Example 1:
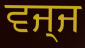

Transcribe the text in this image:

ਵਜ੍ਜ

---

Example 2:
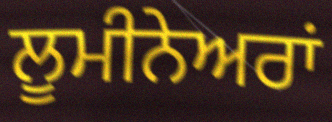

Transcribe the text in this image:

ਲੂਮੀਨੇਅਰਾਂ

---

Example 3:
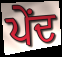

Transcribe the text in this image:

ਪੇਂਦ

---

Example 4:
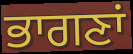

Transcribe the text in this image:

ਭਾਗਣਾਂ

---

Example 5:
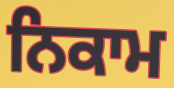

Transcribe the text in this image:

ਨਿਕਾਮ